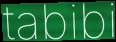
tabibi